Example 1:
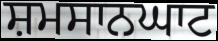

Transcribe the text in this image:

ਸ਼ਮਸਾਨਘਾਟ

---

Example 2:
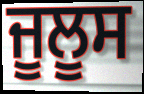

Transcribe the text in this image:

ਜੂਲੂਸ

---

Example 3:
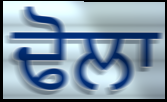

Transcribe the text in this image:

ਢੋਲਾ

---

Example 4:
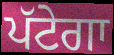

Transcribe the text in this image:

ਪੱਟੇਗਾ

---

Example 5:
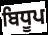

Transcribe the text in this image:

ਬਿਧੂਪ